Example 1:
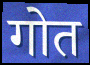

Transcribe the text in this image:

गोत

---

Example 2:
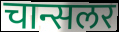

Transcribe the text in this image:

चान्सलर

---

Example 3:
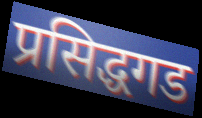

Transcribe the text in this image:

प्रसिद्धगड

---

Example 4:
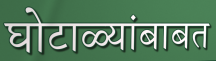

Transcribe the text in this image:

घोटाळ्यांबाबत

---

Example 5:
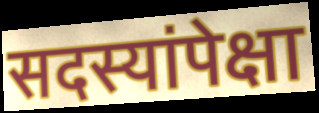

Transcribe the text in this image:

सदस्यांपेक्षा